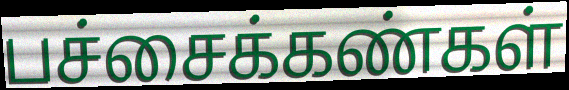
பச்சைக்கண்கள்